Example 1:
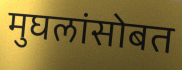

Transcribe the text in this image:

मुघलांसोबत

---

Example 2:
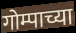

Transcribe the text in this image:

गोम्पाच्या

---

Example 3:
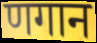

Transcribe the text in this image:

णगान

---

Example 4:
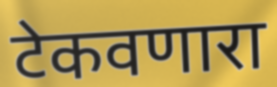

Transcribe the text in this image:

टेकवणारा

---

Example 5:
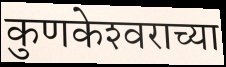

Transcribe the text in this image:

कुणकेश्वराच्या